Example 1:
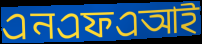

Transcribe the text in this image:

এনএফএআই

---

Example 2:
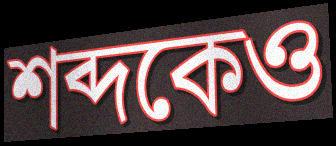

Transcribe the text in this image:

শব্দকেও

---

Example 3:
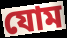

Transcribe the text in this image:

যোম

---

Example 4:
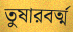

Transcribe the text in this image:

তুষারবর্ত্ম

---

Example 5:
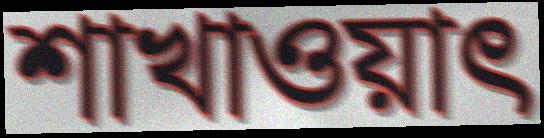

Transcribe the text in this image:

শাখাওয়াৎ